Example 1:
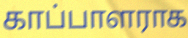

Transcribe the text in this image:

காப்பாளராக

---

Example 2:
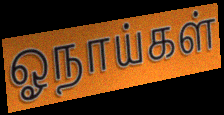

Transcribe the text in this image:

ஓநாய்கள்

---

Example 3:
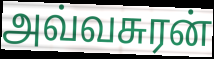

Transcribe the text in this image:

அவ்வசுரன்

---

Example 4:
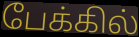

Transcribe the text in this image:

பேக்கில்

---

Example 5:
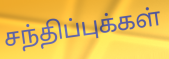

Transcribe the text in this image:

சந்திப்புக்கள்